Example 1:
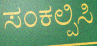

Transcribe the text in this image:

ಸಂಕಲ್ಪಿಸಿ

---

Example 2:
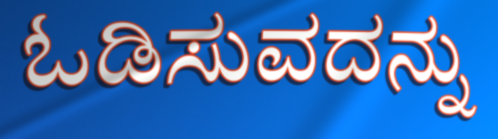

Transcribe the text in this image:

ಓಡಿಸುವದನ್ನು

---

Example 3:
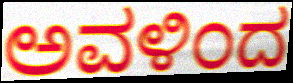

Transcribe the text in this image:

ಅವಳಿಂದ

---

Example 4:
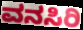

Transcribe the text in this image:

ವನಸಿರಿ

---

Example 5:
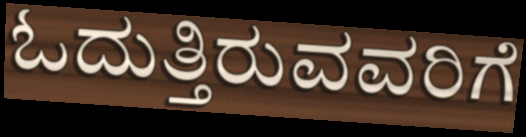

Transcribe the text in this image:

ಓದುತ್ತಿರುವವರಿಗೆ